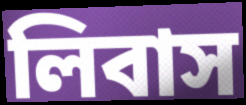
লিবাস